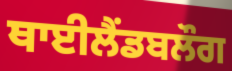
ਥਾਈਲੈਂਡਬਲੌਗ